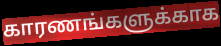
காரணங்களுக்காக